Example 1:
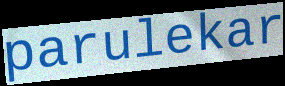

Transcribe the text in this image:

parulekar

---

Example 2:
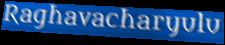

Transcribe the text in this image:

Raghavacharyulu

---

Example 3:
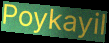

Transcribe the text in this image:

Poykayil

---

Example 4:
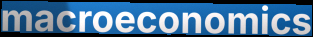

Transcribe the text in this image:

macroeconomics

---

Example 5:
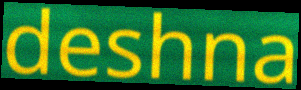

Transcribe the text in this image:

deshna